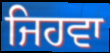
ਜਿਹਵਾ